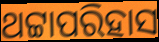
ଥଟ୍ଟାପରିହାସ